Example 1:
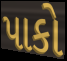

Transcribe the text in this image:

પાકો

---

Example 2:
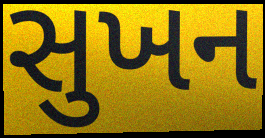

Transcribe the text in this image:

સુખન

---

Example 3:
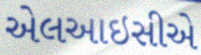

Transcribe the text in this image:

એલઆઇસીએ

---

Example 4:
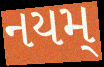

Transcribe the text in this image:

નયમ્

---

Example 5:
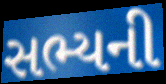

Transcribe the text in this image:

સભ્યની